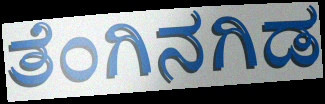
ತೆಂಗಿನಗಿಡ